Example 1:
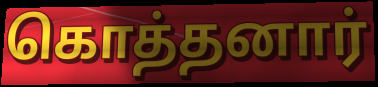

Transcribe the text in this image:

கொத்தனார்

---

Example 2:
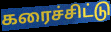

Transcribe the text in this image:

கரைச்சிட்டு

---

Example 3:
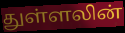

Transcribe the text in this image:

துள்ளலின்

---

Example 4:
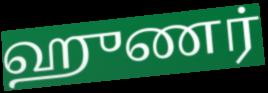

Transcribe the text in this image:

ஹுணர்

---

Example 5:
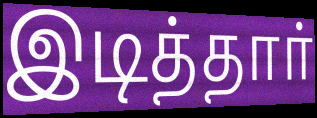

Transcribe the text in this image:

இடித்தார்